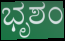
ಭೃಶಂ